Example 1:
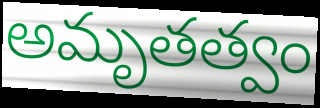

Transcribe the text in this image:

అమృతత్వం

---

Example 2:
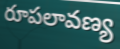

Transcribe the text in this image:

రూపలావణ్య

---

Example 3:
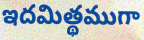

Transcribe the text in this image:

ఇదమిత్థముగా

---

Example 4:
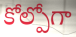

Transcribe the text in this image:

కోల్పోగా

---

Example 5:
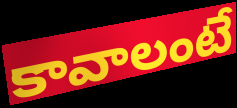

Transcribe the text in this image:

కావాలంటే